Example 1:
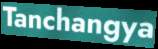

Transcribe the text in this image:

Tanchangya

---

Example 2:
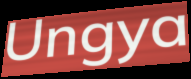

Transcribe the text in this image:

Ungya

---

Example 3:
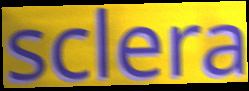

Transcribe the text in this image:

sclera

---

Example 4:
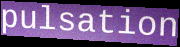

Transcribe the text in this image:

pulsation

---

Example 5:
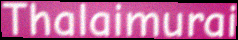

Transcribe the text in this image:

Thalaimurai